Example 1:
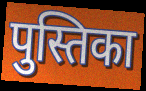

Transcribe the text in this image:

पुस्तिका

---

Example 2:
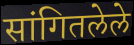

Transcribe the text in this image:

सांगितलेले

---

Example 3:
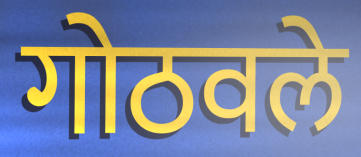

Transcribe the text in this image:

गोठवले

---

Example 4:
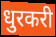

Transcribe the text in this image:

धुरकरी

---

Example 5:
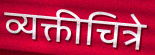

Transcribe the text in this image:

व्यक्तीचित्रे